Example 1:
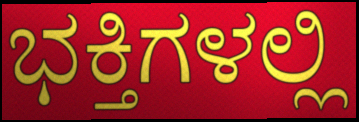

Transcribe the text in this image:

ಭಕ್ತಿಗಳಲ್ಲಿ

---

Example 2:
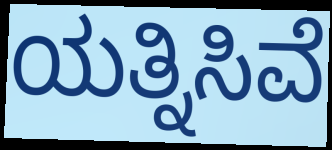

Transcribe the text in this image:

ಯತ್ನಿಸಿವೆ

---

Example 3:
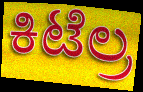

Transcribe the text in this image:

ಕಿಟೆಲ್ರ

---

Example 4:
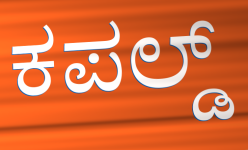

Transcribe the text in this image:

ಕಪಲ್ಡ್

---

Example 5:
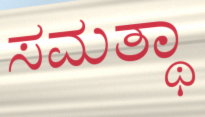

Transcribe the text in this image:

ಸಮತ್ಥಾ